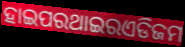
ହାଇପରଥାଇରଏଡିଜମ